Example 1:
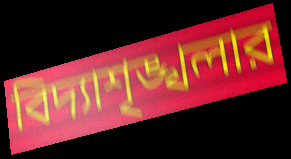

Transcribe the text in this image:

বিদ্যাশৃঙ্খলার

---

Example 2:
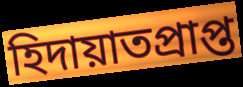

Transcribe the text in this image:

হিদায়াতপ্রাপ্ত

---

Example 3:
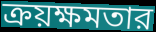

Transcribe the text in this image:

ক্রয়ক্ষমতার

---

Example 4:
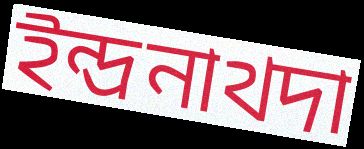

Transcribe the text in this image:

ইন্দ্রনাথদা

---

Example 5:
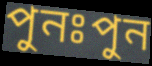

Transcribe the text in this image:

পুনঃপুন